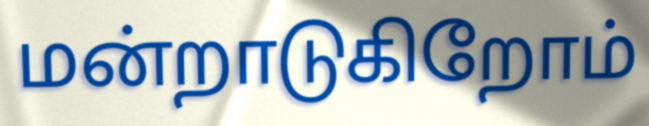
மன்றாடுகிறோம்